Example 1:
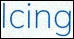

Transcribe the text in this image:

Icing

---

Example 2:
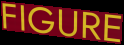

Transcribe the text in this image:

FIGURE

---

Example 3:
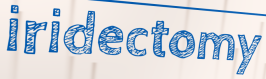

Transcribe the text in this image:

iridectomy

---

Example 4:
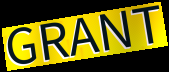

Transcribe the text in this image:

GRANT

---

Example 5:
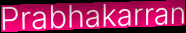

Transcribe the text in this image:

Prabhakarran